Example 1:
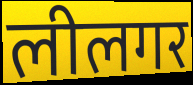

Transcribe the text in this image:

लीलगर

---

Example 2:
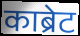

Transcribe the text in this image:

काब्रेट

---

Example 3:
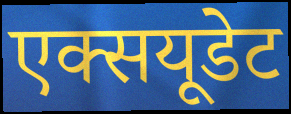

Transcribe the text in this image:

एक्सयूडेट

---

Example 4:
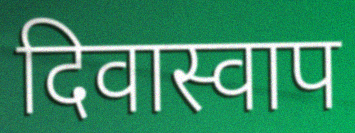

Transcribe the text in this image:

दिवास्वाप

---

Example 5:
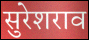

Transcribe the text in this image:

सुरेशराव